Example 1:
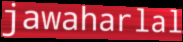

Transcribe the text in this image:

jawaharlal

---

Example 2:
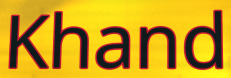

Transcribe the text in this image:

Khand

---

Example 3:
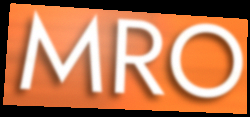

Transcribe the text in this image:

MRO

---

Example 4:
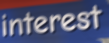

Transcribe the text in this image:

interest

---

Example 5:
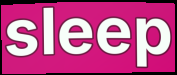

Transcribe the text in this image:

sleep